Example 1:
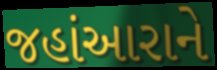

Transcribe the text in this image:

જહાંઆરાને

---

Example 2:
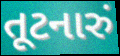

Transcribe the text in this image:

તૂટનારું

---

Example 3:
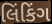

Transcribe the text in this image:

લિંકિંગ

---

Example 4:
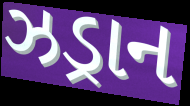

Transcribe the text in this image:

ઝડ્રાન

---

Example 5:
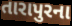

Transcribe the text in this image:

તારાપુરના